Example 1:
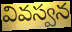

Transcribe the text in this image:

వివస్వన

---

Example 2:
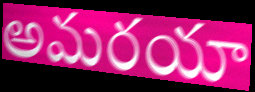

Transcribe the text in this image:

అమరయా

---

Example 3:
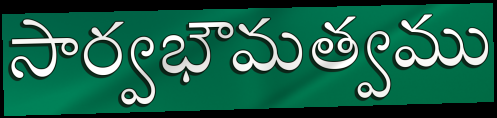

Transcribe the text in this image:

సార్వభౌమత్వము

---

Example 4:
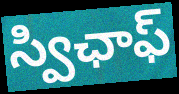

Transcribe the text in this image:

స్విఛాఫ్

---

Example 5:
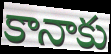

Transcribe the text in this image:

కానాకు